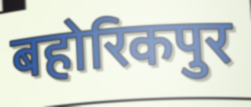
बहोरिकपुर